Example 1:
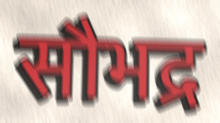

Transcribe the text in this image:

सौभद्र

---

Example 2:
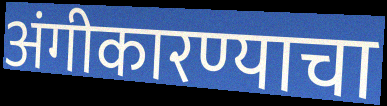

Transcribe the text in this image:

अंगीकारण्याचा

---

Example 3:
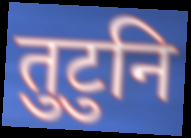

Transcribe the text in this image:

तुटुनि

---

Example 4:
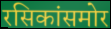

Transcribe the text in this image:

रसिकांसमोर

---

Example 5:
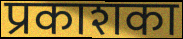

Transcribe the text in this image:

प्रकाशका